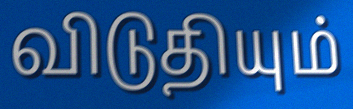
விடுதியும்